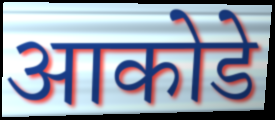
आकोडे